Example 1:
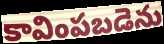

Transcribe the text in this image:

కావింపబడెను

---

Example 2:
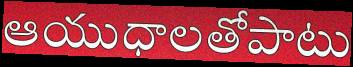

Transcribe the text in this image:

ఆయుధాలతోపాటు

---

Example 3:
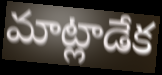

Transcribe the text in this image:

మాట్లాడేక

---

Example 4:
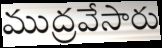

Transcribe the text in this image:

ముద్రవేసారు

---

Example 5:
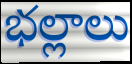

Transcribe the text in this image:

భల్లాలు